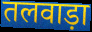
तलवाड़ा